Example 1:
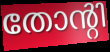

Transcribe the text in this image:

തോന്റി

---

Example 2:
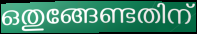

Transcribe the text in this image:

ഒതുങ്ങേണ്ടതിന്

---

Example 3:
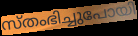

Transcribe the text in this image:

സ്തംഭിച്ചുപോയി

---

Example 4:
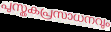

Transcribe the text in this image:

പുസ്തകപ്രസാധനവും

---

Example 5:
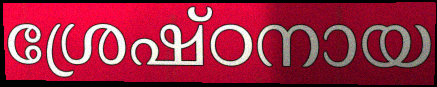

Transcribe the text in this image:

ശ്രേഷ്ഠനായ